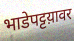
भाडेपट्टय़ावर